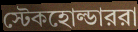
স্টেকহোল্ডাররা